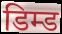
डिम्ड